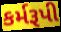
કર્મરૂપી